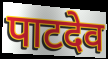
पाटदेव